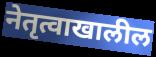
नेतृत्वाखालील